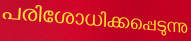
പരിശോധിക്കപ്പെടുന്നു